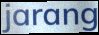
jarang